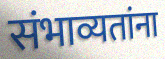
संभाव्यतांना